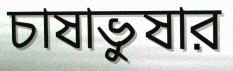
চাষাভুষার